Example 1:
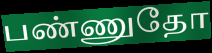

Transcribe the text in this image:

பண்ணுதோ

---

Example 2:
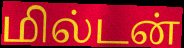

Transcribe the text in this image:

மில்டன்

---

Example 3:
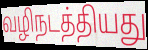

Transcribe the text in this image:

வழிநடத்தியது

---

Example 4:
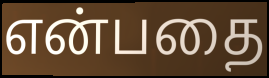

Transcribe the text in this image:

என்பதை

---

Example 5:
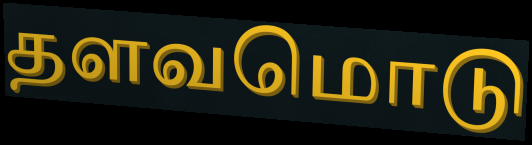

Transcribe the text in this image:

தளவமொடு